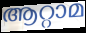
ആറ്റാമ